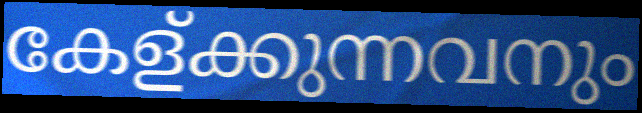
കേള്ക്കുന്നവനും